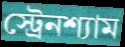
স্ট্রেনশ্যাম